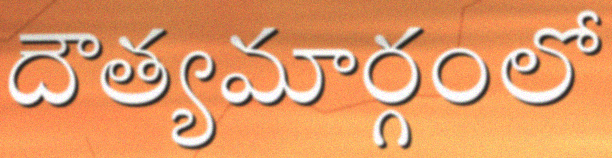
దౌత్యమార్గంలో